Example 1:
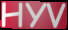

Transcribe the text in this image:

HYV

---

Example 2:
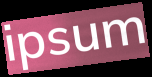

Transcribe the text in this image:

ipsum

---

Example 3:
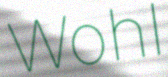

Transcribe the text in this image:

Wohl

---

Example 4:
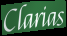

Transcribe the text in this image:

Clarias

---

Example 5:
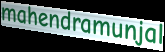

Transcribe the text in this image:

mahendramunjal